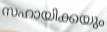
സഹായിക്കയും